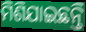
ମିଶିଯାଇଛନ୍ତି